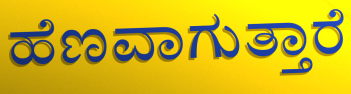
ಹೆಣವಾಗುತ್ತಾರೆ